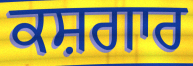
ਕਸ਼ਗਾਰ